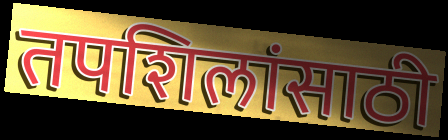
तपशिलांसाठी